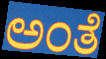
ಅಂತೆ